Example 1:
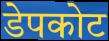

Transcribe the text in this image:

डेपकोट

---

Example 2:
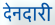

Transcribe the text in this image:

देनदारी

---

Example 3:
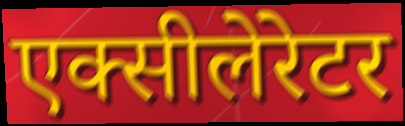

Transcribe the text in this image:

एक्सीलेरेटर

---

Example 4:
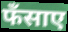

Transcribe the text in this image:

फँसाए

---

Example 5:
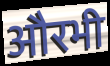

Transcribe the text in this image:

औरभी